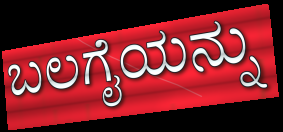
ಬಲಗೈಯನ್ನು